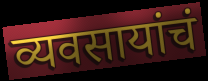
व्यवसायांचं